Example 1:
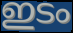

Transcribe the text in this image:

ഇടം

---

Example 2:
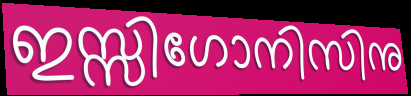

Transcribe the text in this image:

ഇസ്സിഗോനിസിനു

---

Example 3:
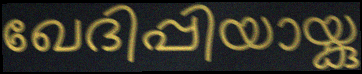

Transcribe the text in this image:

ഖേദിപ്പിയായ്കു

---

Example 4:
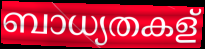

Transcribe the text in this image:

ബാധ്യതകള്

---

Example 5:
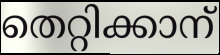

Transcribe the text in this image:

തെറ്റിക്കാന്